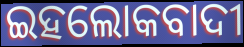
ଇହଲୋକବାଦୀ